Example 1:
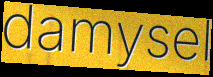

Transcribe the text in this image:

damysel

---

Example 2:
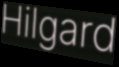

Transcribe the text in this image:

Hilgard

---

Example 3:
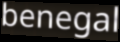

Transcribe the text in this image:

benegal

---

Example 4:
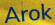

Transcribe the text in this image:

Arok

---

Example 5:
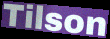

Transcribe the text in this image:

Tilson